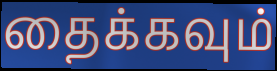
தைக்கவும்